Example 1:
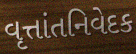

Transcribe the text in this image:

વૃત્તાંતનિવેદક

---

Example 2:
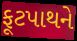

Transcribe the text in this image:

ફૂટપાથને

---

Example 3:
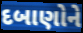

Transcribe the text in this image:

દબાણોને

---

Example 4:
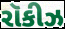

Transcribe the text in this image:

રૉકીઝ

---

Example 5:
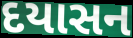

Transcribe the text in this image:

દયાસન